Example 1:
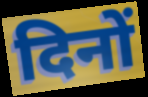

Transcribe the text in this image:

दिनों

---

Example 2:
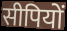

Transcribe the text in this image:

सीपियों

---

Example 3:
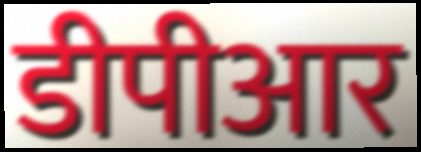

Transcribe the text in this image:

डीपीआर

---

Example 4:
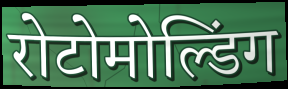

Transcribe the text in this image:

रोटोमोल्डिंग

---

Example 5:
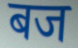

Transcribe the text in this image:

बज